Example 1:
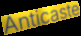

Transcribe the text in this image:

Anticaste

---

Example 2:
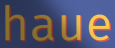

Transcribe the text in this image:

haue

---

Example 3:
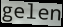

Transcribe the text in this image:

gelen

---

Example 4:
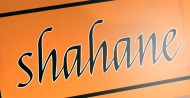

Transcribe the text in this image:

shahane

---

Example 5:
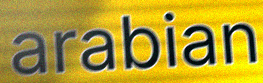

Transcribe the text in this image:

arabian